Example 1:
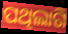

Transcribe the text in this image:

ପଥିଲାଗି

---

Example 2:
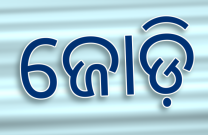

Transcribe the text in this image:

ଜୋଡ଼ି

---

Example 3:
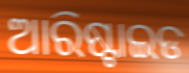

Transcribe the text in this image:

ଆରିଷ୍ଟାଇଡ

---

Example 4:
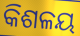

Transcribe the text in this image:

କିଶଳୟ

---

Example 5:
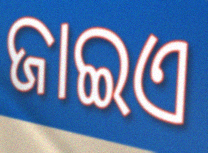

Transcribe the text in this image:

ଜାଇଏ